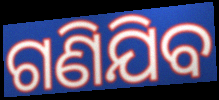
ଗଣିଯିବ